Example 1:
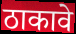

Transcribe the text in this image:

ठाकावे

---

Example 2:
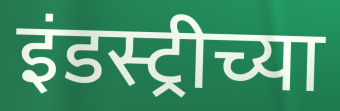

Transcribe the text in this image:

इंडस्ट्रीच्या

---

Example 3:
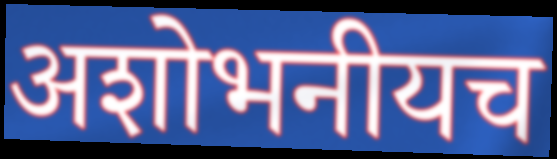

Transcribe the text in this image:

अशोभनीयच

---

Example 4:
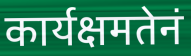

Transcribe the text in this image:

कार्यक्षमतेनं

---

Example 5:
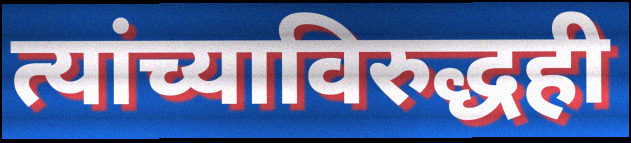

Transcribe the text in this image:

त्यांच्याविरुद्धही